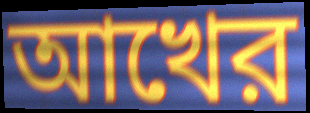
আখের